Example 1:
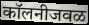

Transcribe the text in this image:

कॉलनीजवळ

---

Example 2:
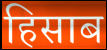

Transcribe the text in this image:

हिसाब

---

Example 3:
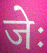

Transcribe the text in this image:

जेः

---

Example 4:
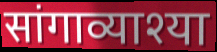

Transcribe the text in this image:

सांगाव्याश्या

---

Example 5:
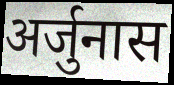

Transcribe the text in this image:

अर्जुनास